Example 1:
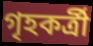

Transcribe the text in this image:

গৃহকর্ত্রী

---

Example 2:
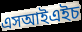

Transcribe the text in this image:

এসআইএইচ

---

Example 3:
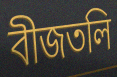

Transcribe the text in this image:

বীজতলি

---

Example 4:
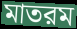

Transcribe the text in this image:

মাতরম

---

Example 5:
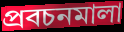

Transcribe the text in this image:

প্রবচনমালা